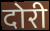
दोरी